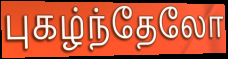
புகழ்ந்தேலோ